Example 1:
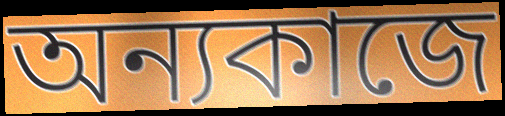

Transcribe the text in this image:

অন্যকাজে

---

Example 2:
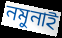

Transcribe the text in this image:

নমুনাই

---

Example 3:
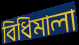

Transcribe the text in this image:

বিধিমালা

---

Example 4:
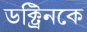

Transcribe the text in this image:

ডক্ট্রিনকে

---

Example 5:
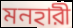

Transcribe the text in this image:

মনহারী